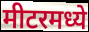
मीटरमध्ये